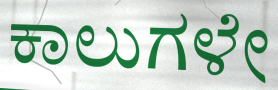
ಕಾಲುಗಳೇ